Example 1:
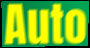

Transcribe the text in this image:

Auto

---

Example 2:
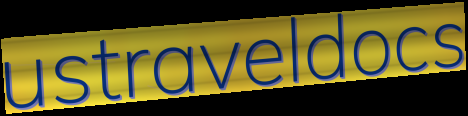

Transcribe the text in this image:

ustraveldocs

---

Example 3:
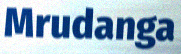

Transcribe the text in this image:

Mrudanga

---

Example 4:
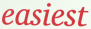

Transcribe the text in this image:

easiest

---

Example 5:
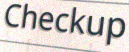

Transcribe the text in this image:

Checkup